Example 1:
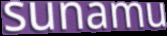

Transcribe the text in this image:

sunamu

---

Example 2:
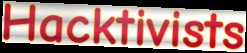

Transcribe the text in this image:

Hacktivists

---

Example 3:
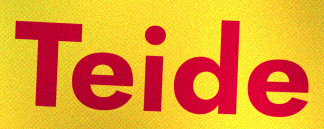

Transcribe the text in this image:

Teide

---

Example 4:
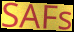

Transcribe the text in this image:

SAFs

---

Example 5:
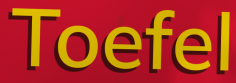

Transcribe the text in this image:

Toefel